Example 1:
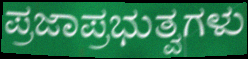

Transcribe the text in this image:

ಪ್ರಜಾಪ್ರಭುತ್ವಗಳು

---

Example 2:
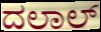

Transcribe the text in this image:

ದಲಾಲ್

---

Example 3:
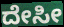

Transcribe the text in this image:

ದೇಸೀ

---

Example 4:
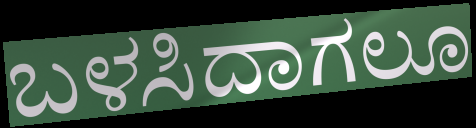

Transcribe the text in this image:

ಬಳಸಿದಾಗಲೂ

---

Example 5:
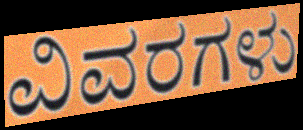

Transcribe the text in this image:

ವಿವರಗಳು